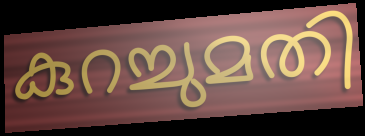
കുറച്ചുമതി